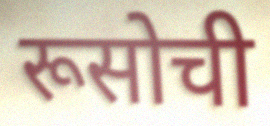
रूसोची